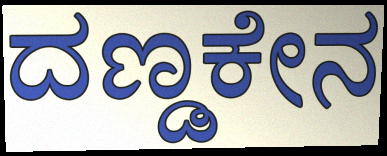
ದಣ್ಡಕೇನ